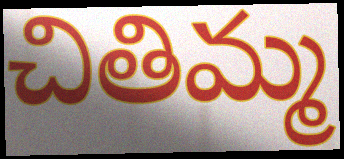
చితిమ్మ